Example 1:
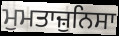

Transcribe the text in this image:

ਮੁਮਤਾਜ਼ੁਨਿਸਾ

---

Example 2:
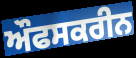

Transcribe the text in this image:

ਔਫਸਕਰੀਨ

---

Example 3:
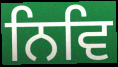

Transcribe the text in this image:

ਨਿਵਿ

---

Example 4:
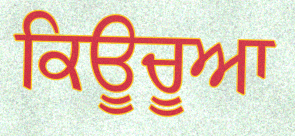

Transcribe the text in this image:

ਕਿਊਚੂਆ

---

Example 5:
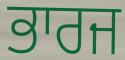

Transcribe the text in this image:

ਭਾਰਜ